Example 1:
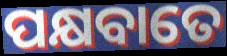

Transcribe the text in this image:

ପକ୍ଷବାତେ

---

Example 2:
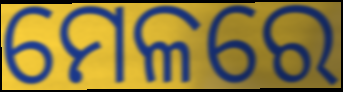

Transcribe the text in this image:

ମେଳରେ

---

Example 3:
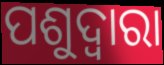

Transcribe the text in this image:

ପଶୁଦ୍ୱାରା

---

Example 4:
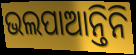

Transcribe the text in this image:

ଭଲପାଆନ୍ତିନି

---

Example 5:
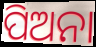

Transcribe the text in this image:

ପିଅନା